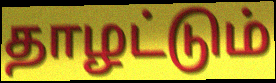
தாழட்டும்